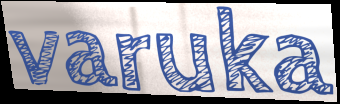
varuka